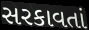
સરકાવતાં